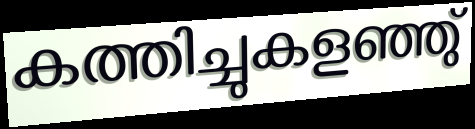
കത്തിച്ചുകളഞ്ഞു്